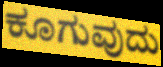
ಕೂಗುವುದು